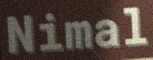
Nimal